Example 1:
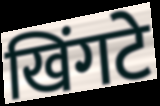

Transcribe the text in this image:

खिंगटे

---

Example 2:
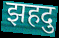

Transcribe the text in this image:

झहदु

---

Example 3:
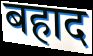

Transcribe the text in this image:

बहाद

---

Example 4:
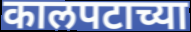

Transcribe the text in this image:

कालपटाच्या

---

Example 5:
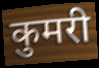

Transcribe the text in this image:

कुमरी